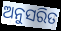
ଅନୁସରିତ